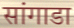
सांगाडा